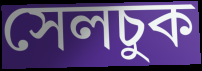
সেলচুক